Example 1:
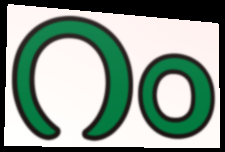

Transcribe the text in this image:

റം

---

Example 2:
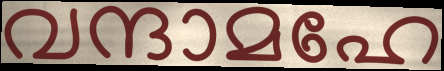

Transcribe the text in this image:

വന്ദാമഹേ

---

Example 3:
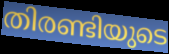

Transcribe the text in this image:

തിരണ്ടിയുടെ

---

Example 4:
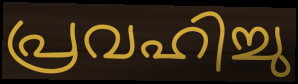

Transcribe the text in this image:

പ്രവഹിച്ചു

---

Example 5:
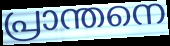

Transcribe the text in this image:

പ്രാന്തനെ